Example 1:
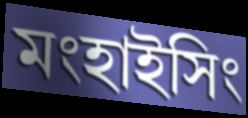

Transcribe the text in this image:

মংহাইসিং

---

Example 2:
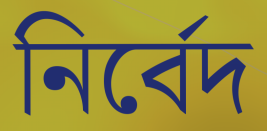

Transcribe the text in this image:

নির্বেদ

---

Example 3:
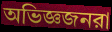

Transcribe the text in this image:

অভিজ্ঞজনরা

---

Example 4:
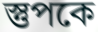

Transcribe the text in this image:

স্তুপকে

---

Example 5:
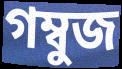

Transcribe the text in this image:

গম্বুজ